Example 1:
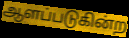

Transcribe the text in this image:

ஆளப்படுகின்ற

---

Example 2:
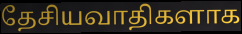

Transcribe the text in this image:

தேசியவாதிகளாக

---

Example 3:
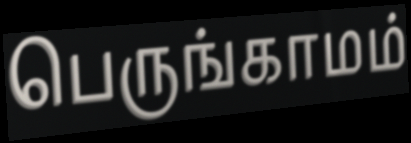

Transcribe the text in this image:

பெருங்காமம்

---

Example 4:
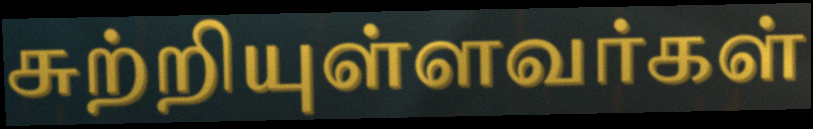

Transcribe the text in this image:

சுற்றியுள்ளவர்கள்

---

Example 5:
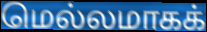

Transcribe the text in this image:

மெல்லமாகக்